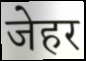
जेहर